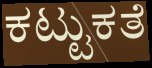
ಕಟ್ಟುಕತೆ